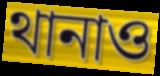
থানাও